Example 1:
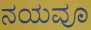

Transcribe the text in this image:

ನಯವೂ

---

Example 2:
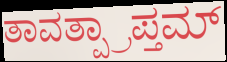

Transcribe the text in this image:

ತಾವತ್ಪ್ರಾಪ್ತಮ್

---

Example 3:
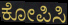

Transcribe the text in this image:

ಕೋಪಿಸಿ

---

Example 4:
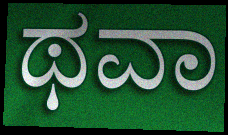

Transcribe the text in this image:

ಥವಾ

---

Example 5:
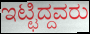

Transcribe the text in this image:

ಇಟ್ಟಿದ್ದವರು